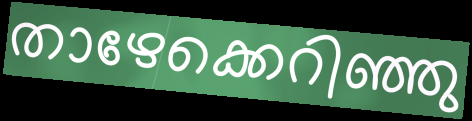
താഴേക്കെറിഞ്ഞു